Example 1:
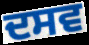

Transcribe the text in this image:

ਦਸਵ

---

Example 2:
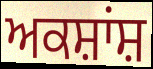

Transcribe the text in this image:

ਅਕਸ਼ਾਂਸ਼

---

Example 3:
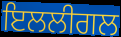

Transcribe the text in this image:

ਇਲਲੀਗਲ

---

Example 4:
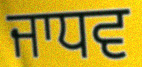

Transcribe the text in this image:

ਜਾਧਵ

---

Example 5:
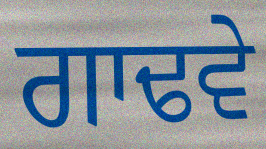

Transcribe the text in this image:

ਗਾਢਵੇ